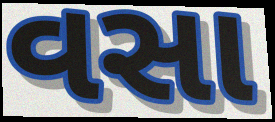
વસા